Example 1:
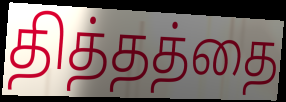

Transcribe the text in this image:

தித்தத்தை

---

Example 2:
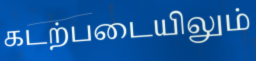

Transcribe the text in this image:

கடற்படையிலும்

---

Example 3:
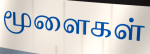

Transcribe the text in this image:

மூளைகள்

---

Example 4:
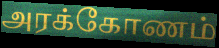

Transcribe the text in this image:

அரக்கோணம்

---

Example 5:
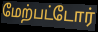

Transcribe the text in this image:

மேற்பட்டோர்